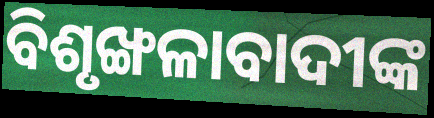
ବିଶୃଙ୍ଖଳାବାଦୀଙ୍କ